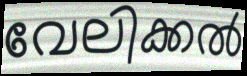
വേലിക്കൽ